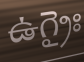
ఉగ్రైః